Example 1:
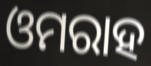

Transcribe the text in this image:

ଓମରାହ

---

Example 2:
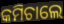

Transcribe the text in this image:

କମିଚାଲେ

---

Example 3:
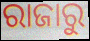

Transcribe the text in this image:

ରାଜାରୁ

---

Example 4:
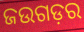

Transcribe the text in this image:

ଜଉଗଡ଼ର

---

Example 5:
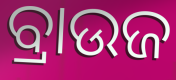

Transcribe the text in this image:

ବ୍ରାଉଜ